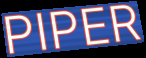
PIPER